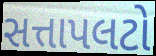
સત્તાપલટો